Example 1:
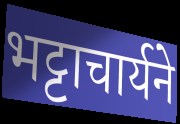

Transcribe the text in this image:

भट्टाचार्यने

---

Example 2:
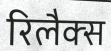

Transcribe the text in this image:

रिलैक्‍स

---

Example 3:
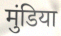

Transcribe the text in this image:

मुंडिया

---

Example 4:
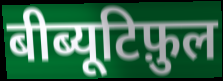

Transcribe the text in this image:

बीब्यूटिफ़ुल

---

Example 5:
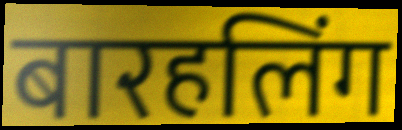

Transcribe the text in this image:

बारहलिंग